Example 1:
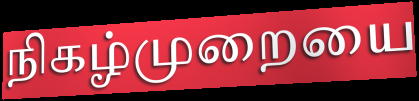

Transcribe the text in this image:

நிகழ்முறையை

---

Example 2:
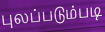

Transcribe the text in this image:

புலப்படும்படி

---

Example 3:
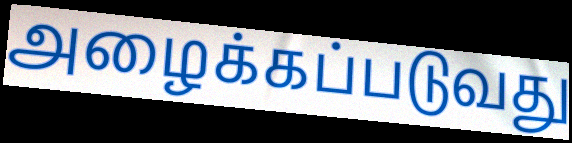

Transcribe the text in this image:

அழைக்கப்படுவது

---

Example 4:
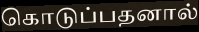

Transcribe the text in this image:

கொடுப்பதனால்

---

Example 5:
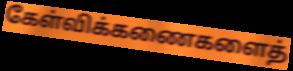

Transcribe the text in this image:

கேள்விக்கணைகளைத்